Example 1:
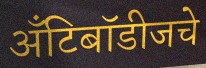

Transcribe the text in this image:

अँटिबॉडीजचे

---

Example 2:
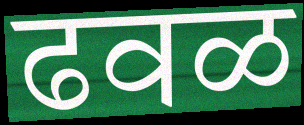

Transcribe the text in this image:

ढवळ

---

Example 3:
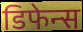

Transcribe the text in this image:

डिफेन्स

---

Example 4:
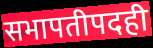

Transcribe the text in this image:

सभापतीपदही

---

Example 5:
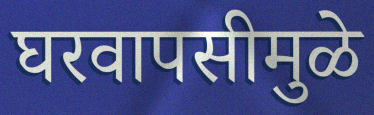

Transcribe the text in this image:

घरवापसीमुळे